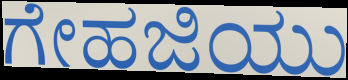
ಗೇಹಜಿಯು